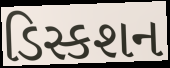
ડિસ્કશન